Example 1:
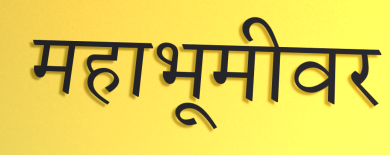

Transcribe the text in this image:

महाभूमीवर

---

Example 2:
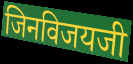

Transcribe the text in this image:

जिनविजयजी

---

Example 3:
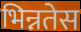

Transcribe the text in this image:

भिन्नतेस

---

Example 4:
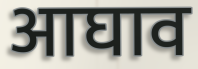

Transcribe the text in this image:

आघाव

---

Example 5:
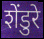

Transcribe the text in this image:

शेंडुरे